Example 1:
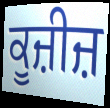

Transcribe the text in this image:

ਕੂਜ਼ੀਜ਼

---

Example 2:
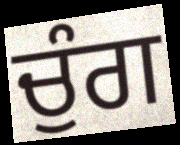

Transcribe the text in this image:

ਚੁੰਗ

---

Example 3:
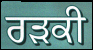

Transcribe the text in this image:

ਰੜਕੀ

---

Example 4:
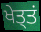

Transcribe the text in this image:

ਖੇਤ੍ਤਂ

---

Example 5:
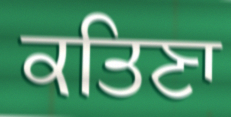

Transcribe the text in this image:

ਕਤਿਣਾ